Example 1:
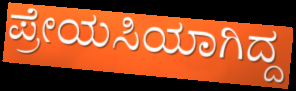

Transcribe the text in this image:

ಪ್ರೇಯಸಿಯಾಗಿದ್ದ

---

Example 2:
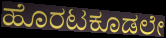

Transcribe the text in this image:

ಹೊರಟಕೂಡಲೇ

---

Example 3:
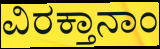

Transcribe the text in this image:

ವಿರಕ್ತಾನಾಂ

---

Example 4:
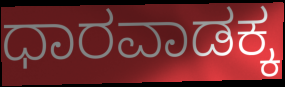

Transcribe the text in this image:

ಧಾರವಾಡಕ್ಕ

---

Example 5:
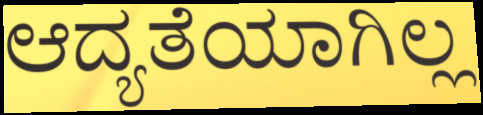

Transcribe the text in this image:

ಆದ್ಯತೆಯಾಗಿಲ್ಲ